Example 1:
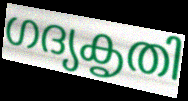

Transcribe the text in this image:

ഗദ്യകൃതി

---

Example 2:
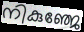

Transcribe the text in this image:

നികുഞ്ജേ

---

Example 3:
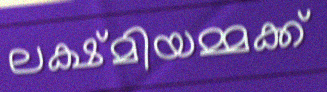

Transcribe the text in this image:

ലക്ഷ്മിയമ്മക്ക്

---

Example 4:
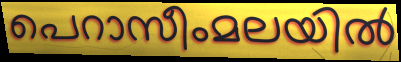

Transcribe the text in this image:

പെറാസീംമലയിൽ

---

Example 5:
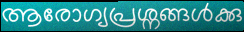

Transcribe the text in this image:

ആരോഗ്യപ്രശ്നങ്ങൾക്കു